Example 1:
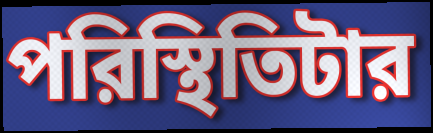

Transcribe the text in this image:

পরিস্থিতিটার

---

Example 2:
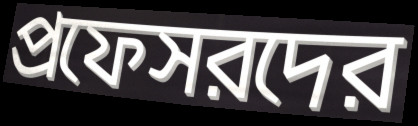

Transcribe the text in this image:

প্রফেসরদের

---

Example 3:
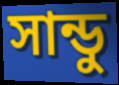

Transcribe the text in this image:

সান্ডু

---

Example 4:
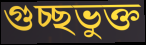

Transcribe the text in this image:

গুচ্ছভুক্ত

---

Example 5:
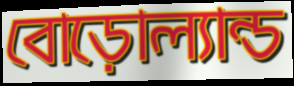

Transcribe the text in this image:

বোড়োল্যান্ড